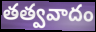
తత్వవాదం